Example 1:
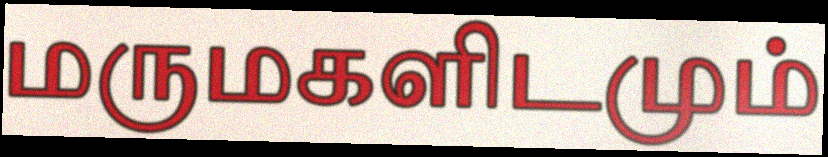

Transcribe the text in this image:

மருமகளிடமும்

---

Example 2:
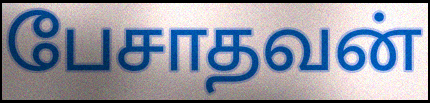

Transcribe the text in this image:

பேசாதவன்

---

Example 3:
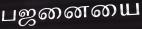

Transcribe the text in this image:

பஜனையை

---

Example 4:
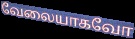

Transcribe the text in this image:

வேலையாகவோ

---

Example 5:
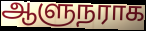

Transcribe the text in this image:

ஆளுநராக